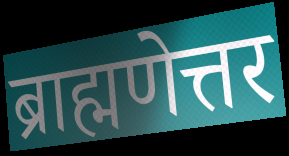
ब्राह्मणेत्तर